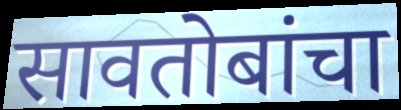
सावतोबांचा